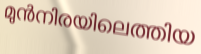
മുൻനിരയിലെത്തിയ